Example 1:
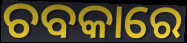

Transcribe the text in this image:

ଚବକାରେ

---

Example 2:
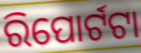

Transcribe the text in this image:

ରିପୋର୍ଟଟା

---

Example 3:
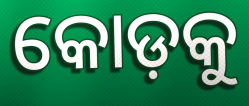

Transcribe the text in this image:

କୋଡ଼କୁ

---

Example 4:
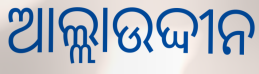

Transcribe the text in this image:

ଆଲ୍ଲାଉଦ୍ଦୀନ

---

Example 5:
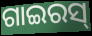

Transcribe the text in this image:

ଗାଇରସ୍